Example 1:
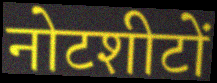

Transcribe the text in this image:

नोटशीटों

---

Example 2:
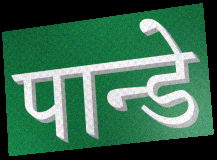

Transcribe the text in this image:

पान्डे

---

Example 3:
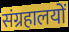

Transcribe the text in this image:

संग्रहालयों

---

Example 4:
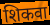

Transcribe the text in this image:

शिकवा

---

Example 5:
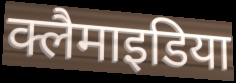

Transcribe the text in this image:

क्लैमाइडिया